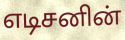
எடிசனின்